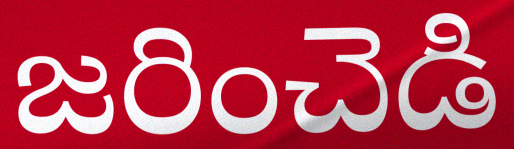
జరించెడి